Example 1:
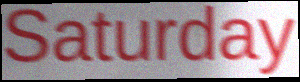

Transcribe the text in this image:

Saturday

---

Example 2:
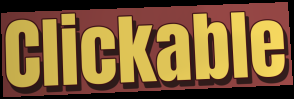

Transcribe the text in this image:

Clickable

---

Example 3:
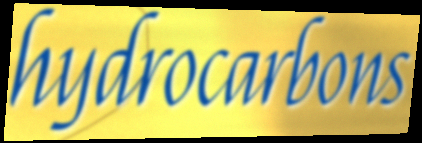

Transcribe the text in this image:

hydrocarbons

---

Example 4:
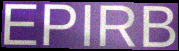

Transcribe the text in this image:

EPIRB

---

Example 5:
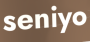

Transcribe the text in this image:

seniyo